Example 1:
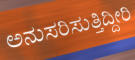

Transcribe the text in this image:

ಅನುಸರಿಸುತ್ತಿದ್ದೀರಿ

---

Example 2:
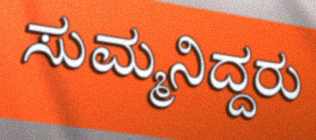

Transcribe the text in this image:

ಸುಮ್ಮನಿದ್ದರು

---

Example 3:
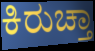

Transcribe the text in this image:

ಕಿರುಚ್ತಾ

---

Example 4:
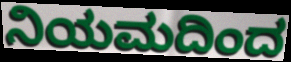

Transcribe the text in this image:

ನಿಯಮದಿಂದ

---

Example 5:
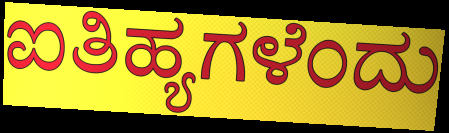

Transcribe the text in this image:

ಐತಿಹ್ಯಗಳೆಂದು